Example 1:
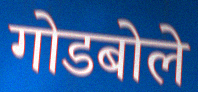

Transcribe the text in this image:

गोडबोले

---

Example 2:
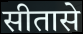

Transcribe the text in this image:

सीतासे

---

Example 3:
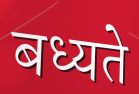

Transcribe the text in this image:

बध्यते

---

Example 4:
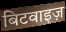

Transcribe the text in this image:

बिटवाइज़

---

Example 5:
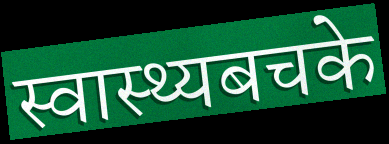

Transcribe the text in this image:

स्वास्थ्यबचके